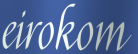
eirokom